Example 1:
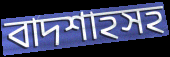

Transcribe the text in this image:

বাদশাহসহ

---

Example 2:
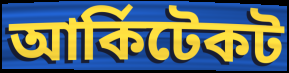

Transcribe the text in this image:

আর্কিটেকট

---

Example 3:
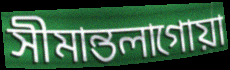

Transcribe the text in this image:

সীমান্তলাগোয়া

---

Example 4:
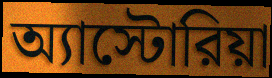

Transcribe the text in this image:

অ্যাস্টোরিয়া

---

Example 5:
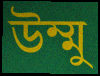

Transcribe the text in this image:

উম্মু